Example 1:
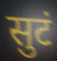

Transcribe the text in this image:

सुटं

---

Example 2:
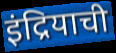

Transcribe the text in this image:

इंद्रियाची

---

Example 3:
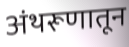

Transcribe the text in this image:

अंथरूणातून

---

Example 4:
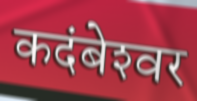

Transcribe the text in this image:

कदंबेश्वर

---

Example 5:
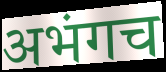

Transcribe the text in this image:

अभंगच